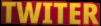
TWITER